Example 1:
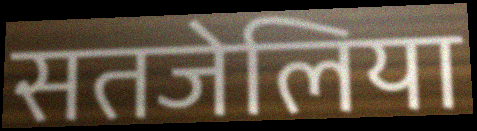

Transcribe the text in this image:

सतजेलिया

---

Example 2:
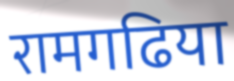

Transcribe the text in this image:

रामगढिया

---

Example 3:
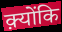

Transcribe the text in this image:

क़्योंकि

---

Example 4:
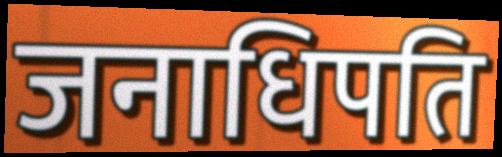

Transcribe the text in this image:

जनाधिपति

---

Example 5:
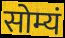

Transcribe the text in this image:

सोम्यं